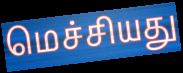
மெச்சியது